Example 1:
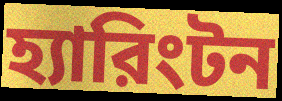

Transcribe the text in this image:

হ্যারিংটন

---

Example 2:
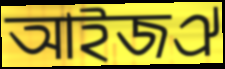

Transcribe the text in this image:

আইজঐ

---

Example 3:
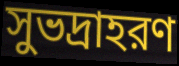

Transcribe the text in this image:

সুভদ্রাহরণ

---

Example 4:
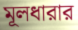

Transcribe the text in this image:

মূলধারার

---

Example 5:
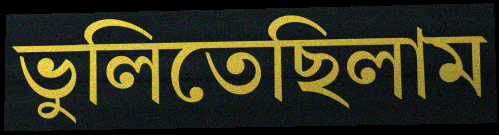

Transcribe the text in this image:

ভুলিতেছিলাম